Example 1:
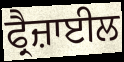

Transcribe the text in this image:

ਫ੍ਰੈਜ਼ਾਈਲ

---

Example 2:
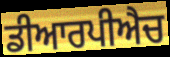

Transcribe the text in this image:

ਡੀਆਰਪੀਐਚ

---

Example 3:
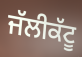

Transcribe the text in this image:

ਜੱਲੀਕੱਟੂ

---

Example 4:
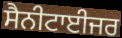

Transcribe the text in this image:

ਸੈਨੀਟਾਈਜਰ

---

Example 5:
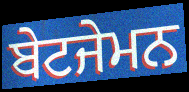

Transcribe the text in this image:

ਬੇਟਜੇਮਨ